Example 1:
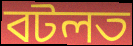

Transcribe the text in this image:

বটলত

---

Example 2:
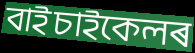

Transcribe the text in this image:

বাইচাইকেলৰ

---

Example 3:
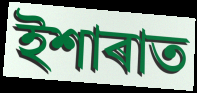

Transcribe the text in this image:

ইশাৰাত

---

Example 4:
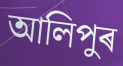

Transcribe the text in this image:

আলিপুৰ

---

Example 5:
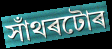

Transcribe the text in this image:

সাঁথৰটোৰ